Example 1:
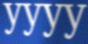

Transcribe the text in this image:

yyyy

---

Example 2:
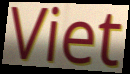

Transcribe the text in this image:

Viet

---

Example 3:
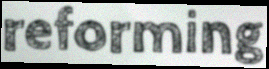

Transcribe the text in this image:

reforming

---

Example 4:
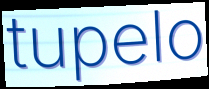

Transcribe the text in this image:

tupelo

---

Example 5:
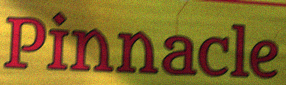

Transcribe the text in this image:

Pinnacle